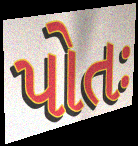
પોતઃ